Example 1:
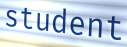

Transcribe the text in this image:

student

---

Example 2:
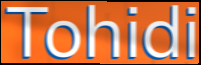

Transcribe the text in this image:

Tohidi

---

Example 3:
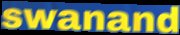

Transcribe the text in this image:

swanand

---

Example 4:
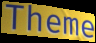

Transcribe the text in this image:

Theme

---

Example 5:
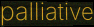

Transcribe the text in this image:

palliative